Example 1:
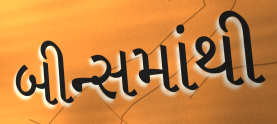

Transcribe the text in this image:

બીન્સમાંથી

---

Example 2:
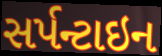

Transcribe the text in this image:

સર્પન્ટાઇન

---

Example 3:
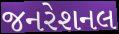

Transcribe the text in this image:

જનરેશનલ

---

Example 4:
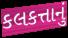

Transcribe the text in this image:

કલકત્તાનું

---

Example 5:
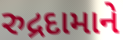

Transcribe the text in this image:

રુદ્રદામાને